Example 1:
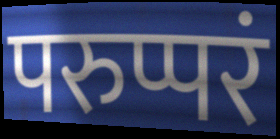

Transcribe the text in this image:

परुप्परं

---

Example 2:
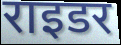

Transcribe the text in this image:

राइडर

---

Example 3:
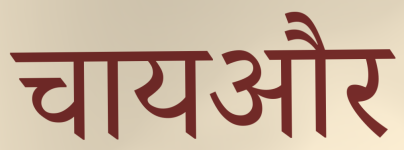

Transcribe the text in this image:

चायऔर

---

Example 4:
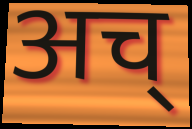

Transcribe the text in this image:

अच्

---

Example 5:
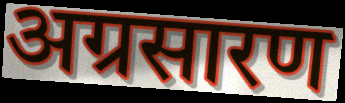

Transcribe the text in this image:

अग्रसारण